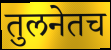
तुलनेतच